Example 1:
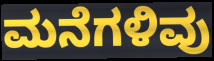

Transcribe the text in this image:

ಮನೆಗಳಿವು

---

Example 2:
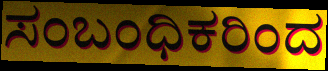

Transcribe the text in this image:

ಸಂಬಂಧಿಕರಿಂದ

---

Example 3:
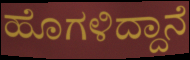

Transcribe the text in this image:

ಹೊಗಳಿದ್ದಾನೆ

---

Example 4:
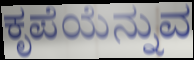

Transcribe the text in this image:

ಕೃಪೆಯೆನ್ನುವ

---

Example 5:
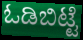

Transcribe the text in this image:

ಓಡಿಬಿಟ್ಟೆ